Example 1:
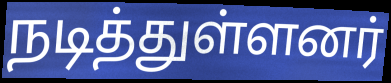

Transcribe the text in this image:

நடித்துள்ளனர்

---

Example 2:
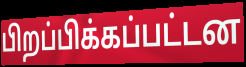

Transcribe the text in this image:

பிறப்பிக்கப்பட்டன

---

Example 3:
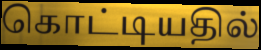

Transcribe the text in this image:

கொட்டியதில்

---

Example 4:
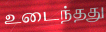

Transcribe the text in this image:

உடைந்தது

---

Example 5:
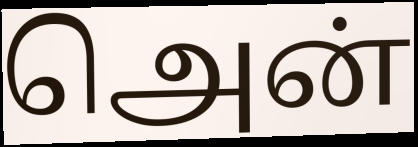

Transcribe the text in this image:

அென்